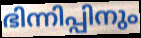
ഭിന്നിപ്പിനും